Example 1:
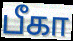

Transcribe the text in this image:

பீகா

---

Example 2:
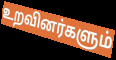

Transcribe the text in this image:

உறவினர்களும்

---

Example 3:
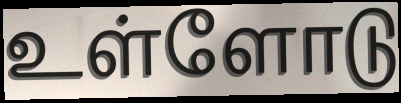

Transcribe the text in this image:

உள்ளோடு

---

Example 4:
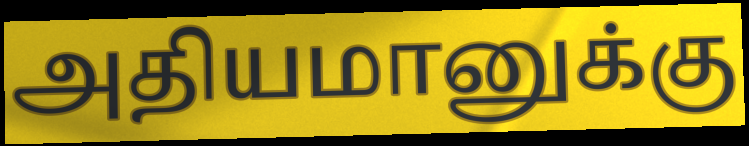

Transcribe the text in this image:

அதியமானுக்கு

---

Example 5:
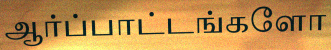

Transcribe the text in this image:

ஆர்ப்பாட்டங்களோ